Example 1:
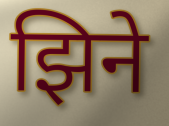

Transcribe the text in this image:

झिने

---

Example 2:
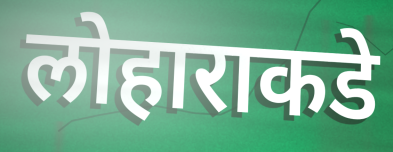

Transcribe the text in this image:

लोहाराकडे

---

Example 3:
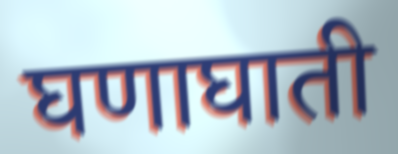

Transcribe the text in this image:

घणाघाती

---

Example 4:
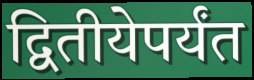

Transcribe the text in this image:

द्वितीयेपर्यंत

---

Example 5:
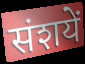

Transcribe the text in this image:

संशयें